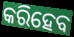
କରିହେବ